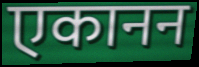
एकानन